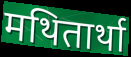
मथितार्था